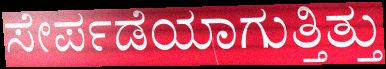
ಸೇರ್ಪಡೆಯಾಗುತ್ತಿತ್ತು